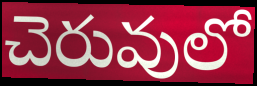
చెరువులో